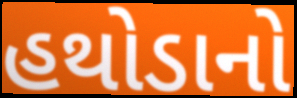
હથોડાનો